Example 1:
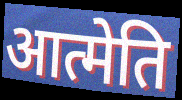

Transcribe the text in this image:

आत्मेति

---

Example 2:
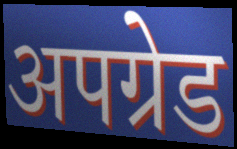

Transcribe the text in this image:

अपग्रेड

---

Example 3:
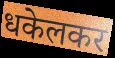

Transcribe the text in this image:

धकेलकर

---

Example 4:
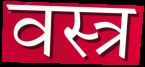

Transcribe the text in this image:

वस्‍त्र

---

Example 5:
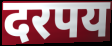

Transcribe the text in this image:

दरपय